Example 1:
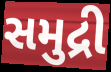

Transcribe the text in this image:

સમુદ્રી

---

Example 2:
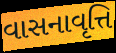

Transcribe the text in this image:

વાસનાવૃત્તિ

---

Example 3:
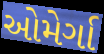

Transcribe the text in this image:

ઓમેર્ગા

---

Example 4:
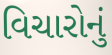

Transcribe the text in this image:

વિચારોનું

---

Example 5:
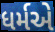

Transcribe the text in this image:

ધર્મએ